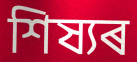
শিষ্যৰ